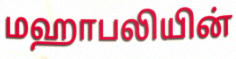
மஹாபலியின்